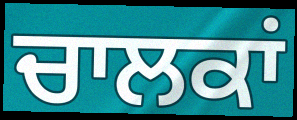
ਚਾਲਕਾਂ